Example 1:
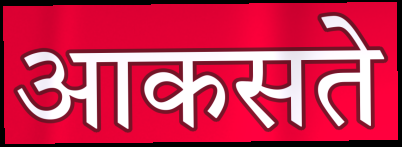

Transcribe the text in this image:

आकसते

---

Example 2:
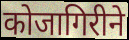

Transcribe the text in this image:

कोजागिरीने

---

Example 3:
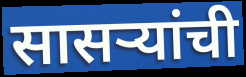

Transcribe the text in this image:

सासऱ्यांची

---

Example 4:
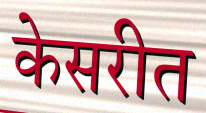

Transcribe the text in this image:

केसरीत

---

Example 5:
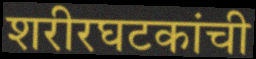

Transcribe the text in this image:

शरीरघटकांची